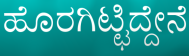
ಹೊರಗಿಟ್ಟಿದ್ದೇನೆ